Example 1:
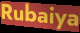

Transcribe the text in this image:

Rubaiya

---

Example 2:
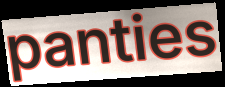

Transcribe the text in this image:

panties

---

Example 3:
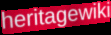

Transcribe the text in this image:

heritagewiki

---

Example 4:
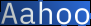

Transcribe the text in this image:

Aahoo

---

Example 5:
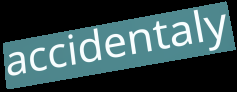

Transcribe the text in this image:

accidentaly